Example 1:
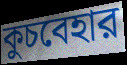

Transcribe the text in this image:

কুচবেহার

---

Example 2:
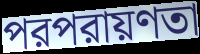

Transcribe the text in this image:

পরপরায়ণতা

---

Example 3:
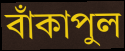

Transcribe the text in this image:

বাঁকাপুল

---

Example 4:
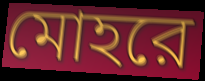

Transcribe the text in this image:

মোহরে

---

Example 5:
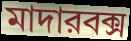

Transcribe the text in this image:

মাদারবক্স